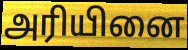
அரியினை